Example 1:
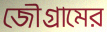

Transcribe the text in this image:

জৌগ্রামের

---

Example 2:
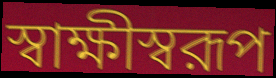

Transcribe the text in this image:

স্বাক্ষীস্বরূপ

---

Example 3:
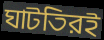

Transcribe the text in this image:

ঘাটতিরই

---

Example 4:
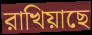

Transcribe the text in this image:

রাখিয়াছে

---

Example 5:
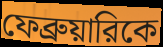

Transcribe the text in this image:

ফেব্রুয়ারিকে